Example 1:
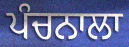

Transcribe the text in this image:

ਪੰਚਨਾਲਾ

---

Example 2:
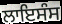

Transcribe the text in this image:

ਲਾਇਸੰਸ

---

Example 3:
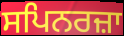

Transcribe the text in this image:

ਸਪਿਨਰਜ਼ਾ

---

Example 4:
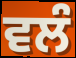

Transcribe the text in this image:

ਵਲੰ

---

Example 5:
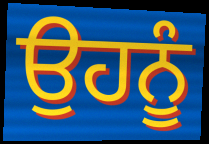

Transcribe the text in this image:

ਉਹਨੂੰ